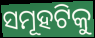
ସମୂହଟିକୁ